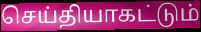
செய்தியாகட்டும்